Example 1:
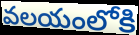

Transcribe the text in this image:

వలయంలోకి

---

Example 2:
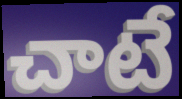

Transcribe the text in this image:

చాటే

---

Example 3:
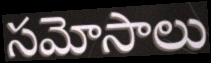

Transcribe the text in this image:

సమోసాలు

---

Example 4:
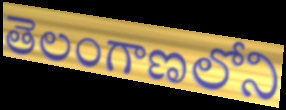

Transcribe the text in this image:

తెలంగాణలోని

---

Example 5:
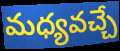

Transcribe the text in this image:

మధ్యవచ్చే